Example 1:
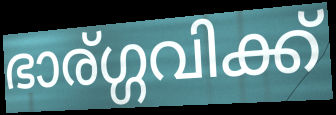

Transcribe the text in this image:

ഭാര്ഗ്ഗവിക്ക്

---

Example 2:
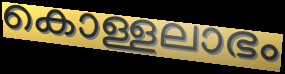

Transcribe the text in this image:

കൊള്ളലാഭം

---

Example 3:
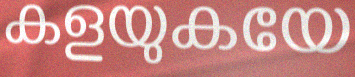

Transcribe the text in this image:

കളയുകയേ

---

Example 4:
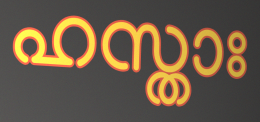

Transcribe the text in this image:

ഹസ്താഃ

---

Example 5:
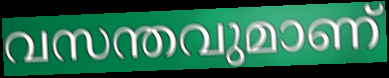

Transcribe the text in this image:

വസന്തവുമാണ്